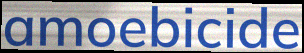
amoebicide